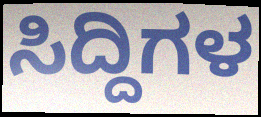
ಸಿದ್ದಿಗಳ